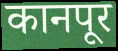
कानपूर